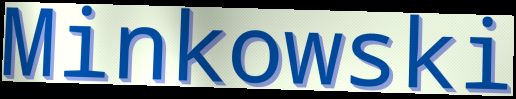
Minkowski